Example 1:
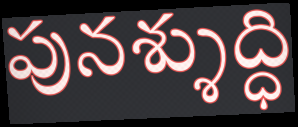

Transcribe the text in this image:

పునశ్శుద్ధి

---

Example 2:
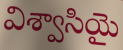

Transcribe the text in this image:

విశ్వాసియై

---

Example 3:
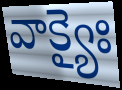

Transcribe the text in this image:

వాక్యైః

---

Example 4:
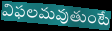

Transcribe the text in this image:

విఫలమవుతుంటే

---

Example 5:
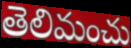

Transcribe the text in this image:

తెలిమంచు